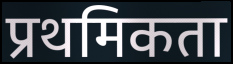
प्रथमिकता